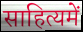
साहित्यमें